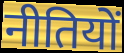
नीतियों